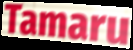
Tamaru